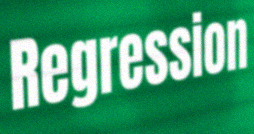
Regression